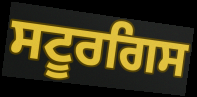
ਸਟੂਰਗਿਸ